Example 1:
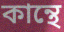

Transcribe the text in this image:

কান্থে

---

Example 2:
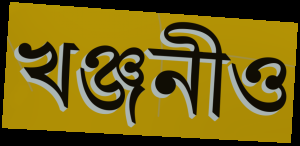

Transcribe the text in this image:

খঞ্জনীও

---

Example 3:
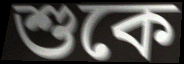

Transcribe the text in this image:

শুকে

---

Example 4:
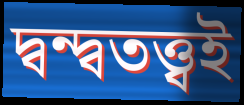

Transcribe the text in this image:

দ্বন্দ্বতত্ত্বই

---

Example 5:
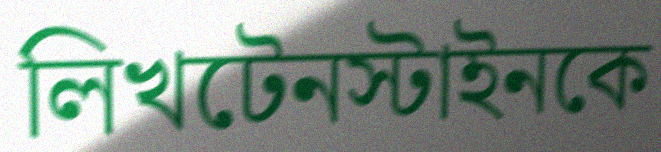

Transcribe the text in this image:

লিখটেনস্টাইনকে